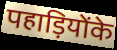
पहाड़ियोंके